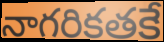
నాగరికతకే